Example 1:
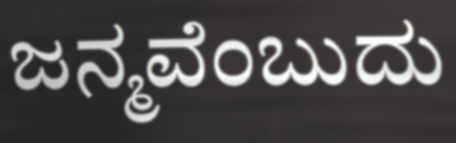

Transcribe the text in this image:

ಜನ್ಮವೆಂಬುದು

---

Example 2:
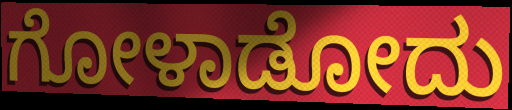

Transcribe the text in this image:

ಗೋಳಾಡೋದು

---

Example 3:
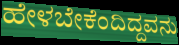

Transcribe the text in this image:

ಹೇಳಬೇಕೆಂದಿದ್ದವನು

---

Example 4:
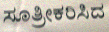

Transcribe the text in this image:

ಸೂತ್ರೀಕರಿಸಿದ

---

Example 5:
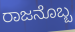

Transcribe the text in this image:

ರಾಜನೊಬ್ಬ